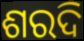
ଶରଦି